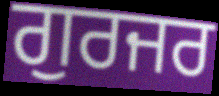
ਗੁਰਜਰ